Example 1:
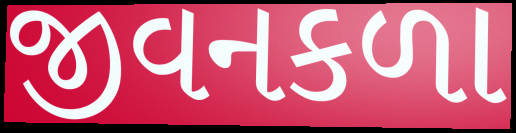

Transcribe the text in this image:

જીવનકળા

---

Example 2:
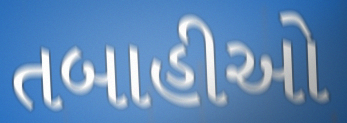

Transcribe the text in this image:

તબાહીઓ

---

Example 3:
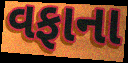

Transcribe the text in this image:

વફાના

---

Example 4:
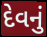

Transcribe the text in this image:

દેવનું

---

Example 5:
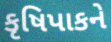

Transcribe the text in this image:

કૃષિપાકને